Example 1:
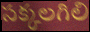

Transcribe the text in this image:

సక్కలగిలి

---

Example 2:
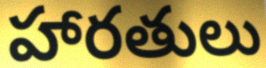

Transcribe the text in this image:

హారతులు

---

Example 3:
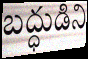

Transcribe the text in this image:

బద్ధుడిని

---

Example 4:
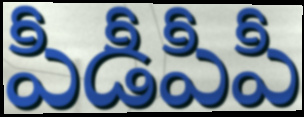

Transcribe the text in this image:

పీడీపీపీ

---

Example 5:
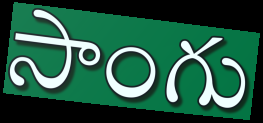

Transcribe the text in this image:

సాంగు